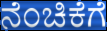
ನೆಂಚಿಕೆಗೆ